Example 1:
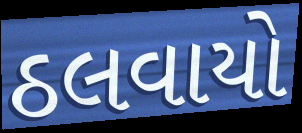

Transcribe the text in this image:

ઠલવાયો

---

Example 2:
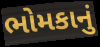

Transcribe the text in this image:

ભોમકાનું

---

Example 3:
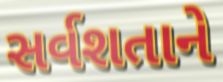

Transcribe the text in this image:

સર્વશતાને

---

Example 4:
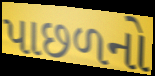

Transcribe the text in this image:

પાછળનો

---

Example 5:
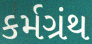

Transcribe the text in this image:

કર્મગ્રંથ